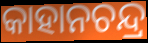
କାହାନଚନ୍ଦ୍ର